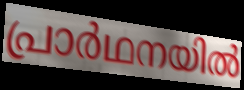
പ്രാർഥനയിൽ